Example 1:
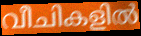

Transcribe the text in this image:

വീചികളിൽ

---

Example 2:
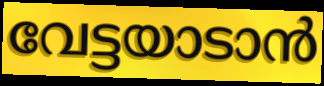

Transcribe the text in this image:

വേട്ടയാടാൻ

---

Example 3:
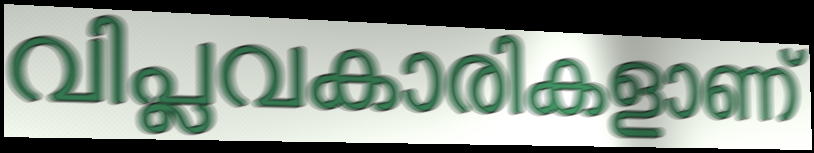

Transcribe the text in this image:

വിപ്ലവകാരികളാണ്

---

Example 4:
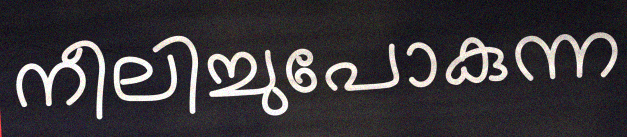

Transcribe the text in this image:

നീലിച്ചുപോകുന്ന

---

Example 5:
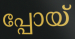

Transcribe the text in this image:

പ്പോയ്